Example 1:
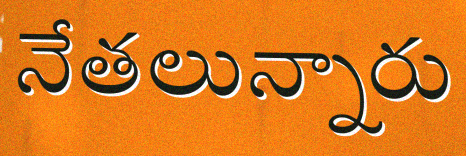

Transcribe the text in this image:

నేతలున్నారు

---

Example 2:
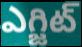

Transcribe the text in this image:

ఎగ్జిట్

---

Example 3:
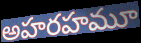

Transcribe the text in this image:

అహరహమూ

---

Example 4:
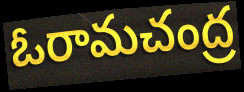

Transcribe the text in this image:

ఓరామచంద్ర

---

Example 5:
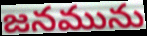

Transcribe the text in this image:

జనమును